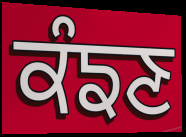
ਕੰਙਣ